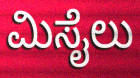
ಮಿಸೈಲು